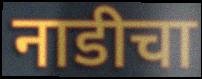
नाडीचा